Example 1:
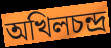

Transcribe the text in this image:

অখিলচন্দ্র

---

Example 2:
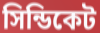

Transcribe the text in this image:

সিন্ডিকেট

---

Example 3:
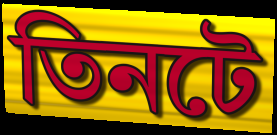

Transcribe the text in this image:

তিনটে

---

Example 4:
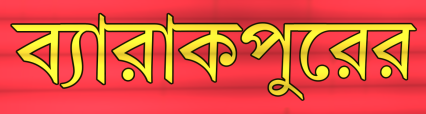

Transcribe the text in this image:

ব্যারাকপুরের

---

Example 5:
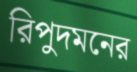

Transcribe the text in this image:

রিপুদমনের